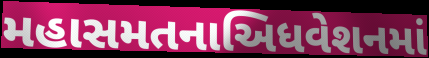
મહાસમતનાઅિધવેશનમાં